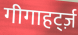
गीगाहर्ट्ज़